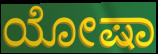
ಯೋಷಾ